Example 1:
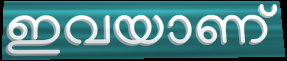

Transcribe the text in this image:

ഇവയാണ്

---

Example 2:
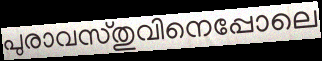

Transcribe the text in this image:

പുരാവസ്തുവിനെപ്പോലെ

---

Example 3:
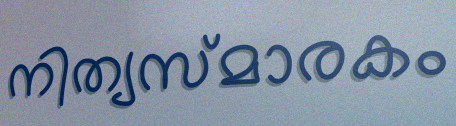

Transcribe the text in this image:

നിത്യസ്മാരകം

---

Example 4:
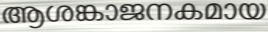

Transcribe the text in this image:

ആശങ്കാജനകമായ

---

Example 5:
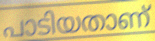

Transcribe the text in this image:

പാടിയതാണ്